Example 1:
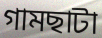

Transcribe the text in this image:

গামছাটা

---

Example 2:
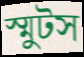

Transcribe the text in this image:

স্মুটস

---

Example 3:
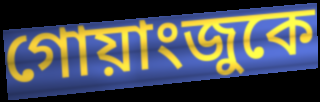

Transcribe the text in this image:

গোয়াংজুকে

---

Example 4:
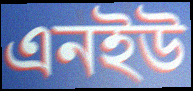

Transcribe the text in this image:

এনইউ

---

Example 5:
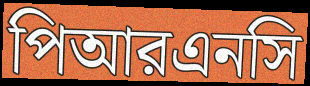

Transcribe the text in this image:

পিআরএনসি